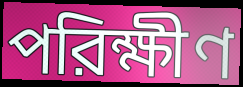
পরিক্ষীণ